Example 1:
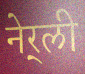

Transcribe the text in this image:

नेर्ली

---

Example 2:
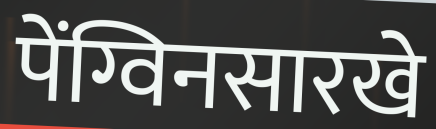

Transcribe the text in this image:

पेंग्विनसारखे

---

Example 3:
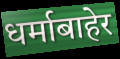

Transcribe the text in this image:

धर्माबाहेर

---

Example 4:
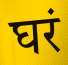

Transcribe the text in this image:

घरं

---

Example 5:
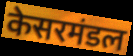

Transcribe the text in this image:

केसरमंडल